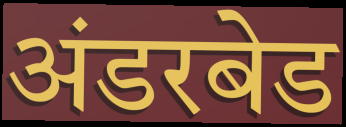
अंडरबेड